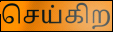
செய்கிற